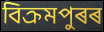
বিক্ৰমপুৰৰ